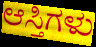
ಆಸ್ತಿಗಳು